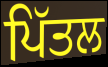
ਪਿੱਤਲ